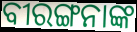
ବୀରଙ୍ଗନାଙ୍କ